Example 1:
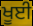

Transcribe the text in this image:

ਖੂਈ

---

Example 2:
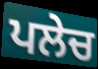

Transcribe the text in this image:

ਪਲੇਚ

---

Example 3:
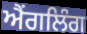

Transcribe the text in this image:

ਐਂਗਲਿੰਗ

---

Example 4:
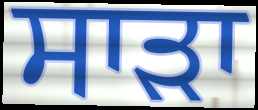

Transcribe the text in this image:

ਸਾੜਾ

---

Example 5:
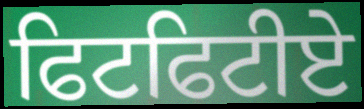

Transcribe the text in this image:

ਫਿਟਫਿਟੀਏ